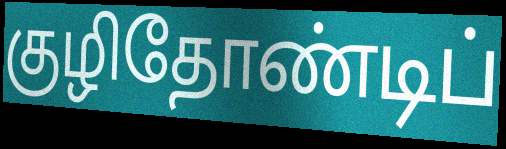
குழிதோண்டிப்